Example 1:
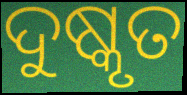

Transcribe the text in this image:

ଦୁଷ୍କୃତ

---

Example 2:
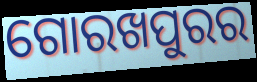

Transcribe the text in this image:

ଗୋରଖପୁରର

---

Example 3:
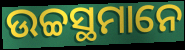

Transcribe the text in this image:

ଉଚ୍ଚସ୍ଥମାନେ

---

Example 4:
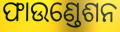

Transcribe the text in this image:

ଫାଉଣ୍ଡେଶନ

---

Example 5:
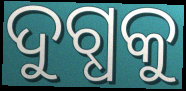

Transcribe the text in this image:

ଦୁଗ୍ଧକୁ